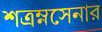
শত্রম্নসেনার